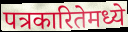
पत्रकारितेमध्ये